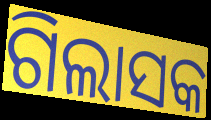
ଗିଲାସକ